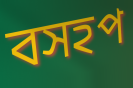
বসহপ